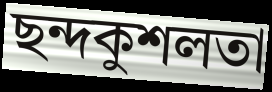
ছন্দকুশলতা